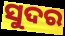
ସୁଦର